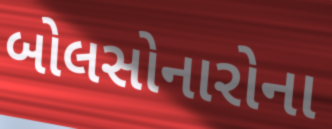
બોલસોનારોના